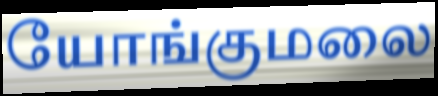
யோங்குமலை